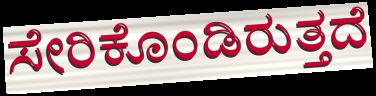
ಸೇರಿಕೊಂಡಿರುತ್ತದೆ